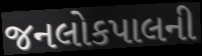
જનલોકપાલની